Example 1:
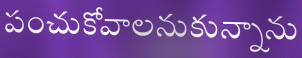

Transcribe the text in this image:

పంచుకోవాలనుకున్నాను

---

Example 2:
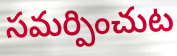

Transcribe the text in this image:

సమర్పించుట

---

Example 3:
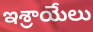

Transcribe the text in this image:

ఇశ్రాయేలు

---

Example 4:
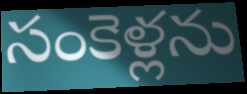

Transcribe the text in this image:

సంకెళ్లను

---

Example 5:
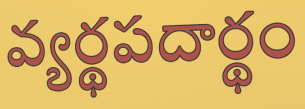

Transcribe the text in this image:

వ్యర్థపదార్థం